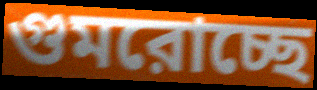
গুমরোচ্ছে